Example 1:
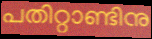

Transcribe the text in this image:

പതിറ്റാണ്ടിനു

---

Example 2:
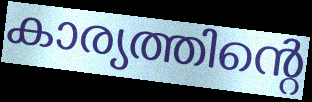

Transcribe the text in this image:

കാര്യത്തിന്റെ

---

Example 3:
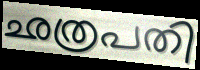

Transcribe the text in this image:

ഛത്രപതി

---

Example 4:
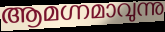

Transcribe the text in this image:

ആമഗ്നമാവുന്നു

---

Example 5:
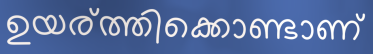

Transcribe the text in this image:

ഉയര്ത്തിക്കൊണ്ടാണ്